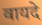
वायदे